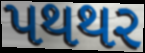
પથથર